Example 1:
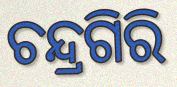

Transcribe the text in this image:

ଚନ୍ଦ୍ରଗିରି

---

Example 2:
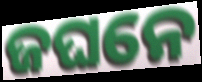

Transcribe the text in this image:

ଜଘନେ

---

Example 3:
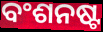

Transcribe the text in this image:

ବଂଶନଷ୍ଟ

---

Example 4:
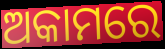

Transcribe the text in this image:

ଅକାମରେ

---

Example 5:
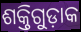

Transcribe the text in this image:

ଶକ୍ତିଗୁଡ଼ାକ